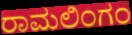
ರಾಮಲಿಂಗಂ